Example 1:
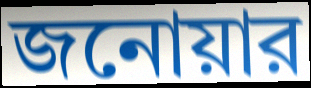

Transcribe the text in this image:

জনোয়ার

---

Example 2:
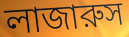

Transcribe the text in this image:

লাজারুস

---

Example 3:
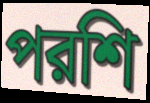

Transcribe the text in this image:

পরশি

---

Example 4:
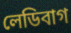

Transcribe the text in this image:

লেডিবাগ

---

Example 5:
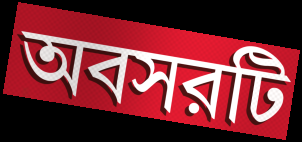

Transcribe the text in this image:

অবসরটি